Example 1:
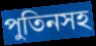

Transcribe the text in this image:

পুতিনসহ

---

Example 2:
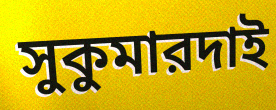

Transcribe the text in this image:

সুকুমারদাই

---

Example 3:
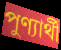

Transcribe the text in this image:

পুণ্যার্থী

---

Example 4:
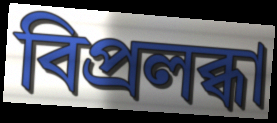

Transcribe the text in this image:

বিপ্রলব্ধা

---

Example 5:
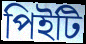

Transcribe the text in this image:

পিইটি